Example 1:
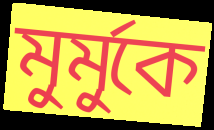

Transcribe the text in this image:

মুর্মুকে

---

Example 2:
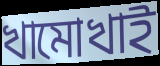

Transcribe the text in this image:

খামোখাই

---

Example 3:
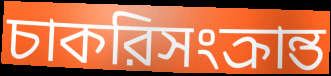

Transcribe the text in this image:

চাকরিসংক্রান্ত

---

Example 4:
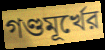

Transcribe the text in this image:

গণ্ডমূর্খের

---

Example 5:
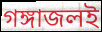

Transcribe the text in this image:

গঙ্গাজলই